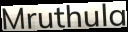
Mruthula